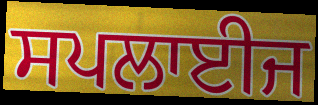
ਸਪਲਾਈਜ